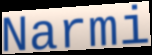
Narmi